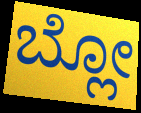
ಬ್ಲೋ